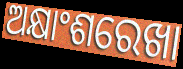
ଅକ୍ଷାଂଶରେଖା